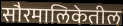
सौरमालिकेतील